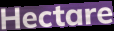
Hectare